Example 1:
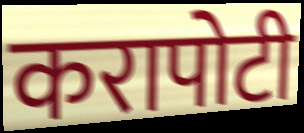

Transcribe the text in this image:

करापोटी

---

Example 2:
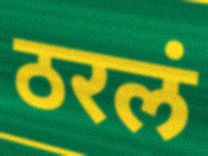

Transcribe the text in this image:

ठरलं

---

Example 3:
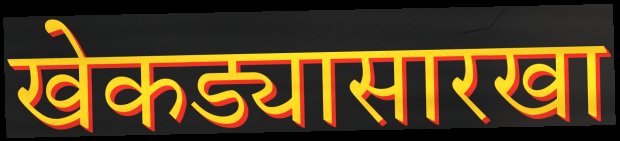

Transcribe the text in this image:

खेकड्यासारखा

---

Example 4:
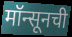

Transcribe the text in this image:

मॉन्सूनची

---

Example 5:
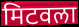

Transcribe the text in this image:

मिटवला